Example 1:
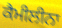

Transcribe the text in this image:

ਕੈਮੀਲੀਨਾ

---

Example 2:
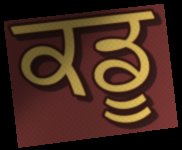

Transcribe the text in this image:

ਕਡੂ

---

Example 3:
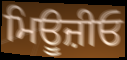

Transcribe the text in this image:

ਮਿਊਜ਼ੀਓ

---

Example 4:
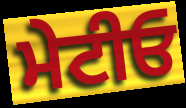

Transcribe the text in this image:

ਮੇਟੀਓ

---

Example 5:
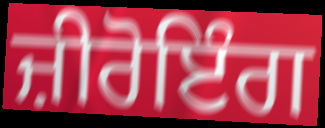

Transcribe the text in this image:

ਜ਼ੀਰੋਇੰਗ